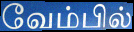
வேம்பில்